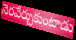
నెరవేర్చుకుంటాడు